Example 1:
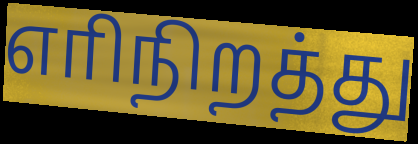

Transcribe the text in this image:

எரிநிறத்து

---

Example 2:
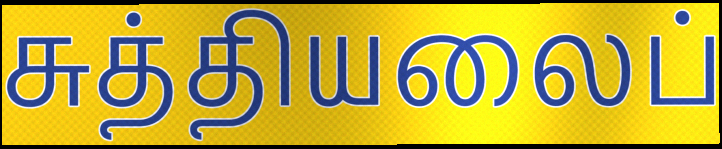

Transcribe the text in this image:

சுத்தியலைப்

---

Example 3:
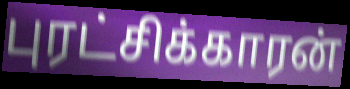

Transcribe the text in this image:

புரட்சிக்காரன்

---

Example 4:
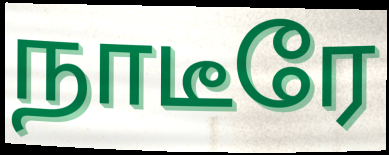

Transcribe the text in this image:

நாடீரே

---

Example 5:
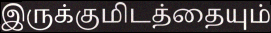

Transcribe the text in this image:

இருக்குமிடத்தையும்